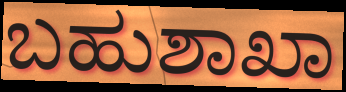
ಬಹುಶಾಖಾ